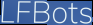
LFBots